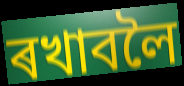
ৰখাবলৈ